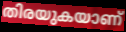
തിരയുകയാണ്